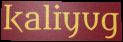
kaliyug